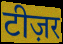
टीज़र